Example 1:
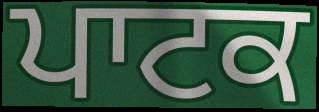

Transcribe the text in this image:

ਪਾਟਕ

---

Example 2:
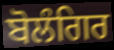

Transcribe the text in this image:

ਬੋਲੰਗਿਰ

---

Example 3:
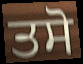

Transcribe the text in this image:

ਤਸੋ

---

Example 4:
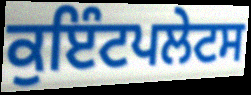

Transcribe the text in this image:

ਕੁਇੰਟਪਲੇਟਸ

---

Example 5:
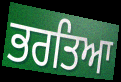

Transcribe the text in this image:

ਭਰਤਿਆ